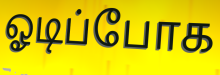
ஓடிப்போக